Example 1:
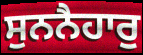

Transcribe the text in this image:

ਸੁਨਨੈਹਾਰੁ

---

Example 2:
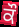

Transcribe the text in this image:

ਕੌ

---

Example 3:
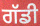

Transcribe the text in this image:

ਗੱਡੀ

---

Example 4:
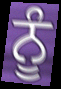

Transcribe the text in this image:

ਨੂੰ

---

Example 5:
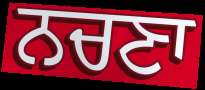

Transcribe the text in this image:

ਨਚਣਾ